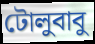
টোলুবাবু